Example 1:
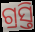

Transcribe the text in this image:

ଗ୍ରସ୍ତି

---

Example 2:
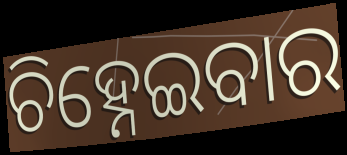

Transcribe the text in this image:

ଚିହ୍ନେଇବାର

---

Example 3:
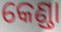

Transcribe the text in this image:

କେଣ୍ଡା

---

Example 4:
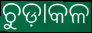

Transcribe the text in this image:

ଚୁଡ଼ାକଳ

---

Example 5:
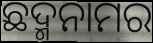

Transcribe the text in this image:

ଛଦ୍ମନାମର